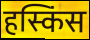
हस्किंस